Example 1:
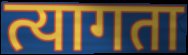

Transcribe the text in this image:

त्यागता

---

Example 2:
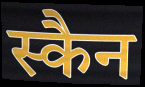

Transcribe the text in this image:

स्‍कैन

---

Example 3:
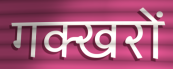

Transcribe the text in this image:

गक्खरों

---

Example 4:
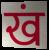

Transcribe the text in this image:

खं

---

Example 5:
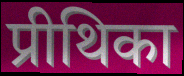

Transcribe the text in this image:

प्रीथिका